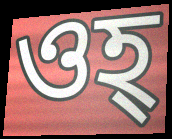
ওহ্